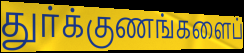
துர்க்குணங்களைப்